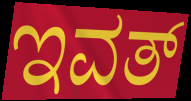
ಇವತ್